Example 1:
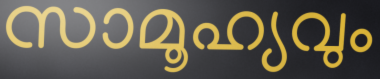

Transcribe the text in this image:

സാമൂഹ്യവും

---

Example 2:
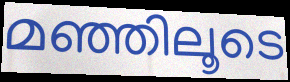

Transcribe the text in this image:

മഞ്ഞിലൂടെ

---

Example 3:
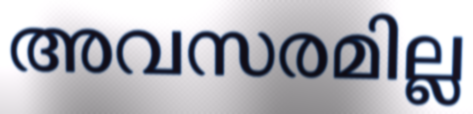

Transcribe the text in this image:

അവസരമില്ല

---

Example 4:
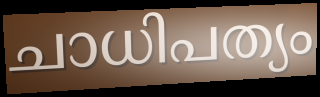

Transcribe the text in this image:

ചാധിപത്യം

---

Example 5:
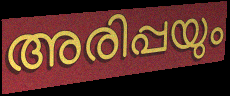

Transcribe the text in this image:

അരിപ്പയും